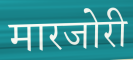
मारजोरी